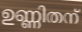
ഉണ്ണിതന്